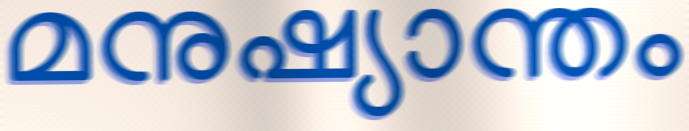
മനുഷ്യാന്തം